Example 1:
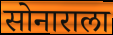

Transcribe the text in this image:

सोनाराला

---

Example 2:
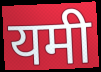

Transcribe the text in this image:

यमी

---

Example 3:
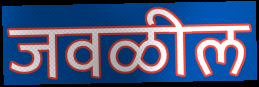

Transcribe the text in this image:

जवळील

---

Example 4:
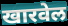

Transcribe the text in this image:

खारवेल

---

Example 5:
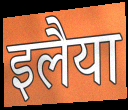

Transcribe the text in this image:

इलैया